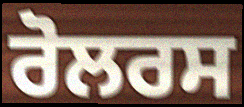
ਰੋਲਰਸ